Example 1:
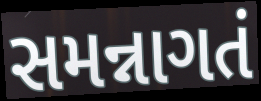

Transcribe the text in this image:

સમન્નાગતં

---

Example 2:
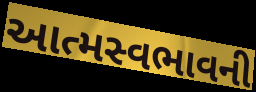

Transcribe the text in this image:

આત્મસ્વભાવની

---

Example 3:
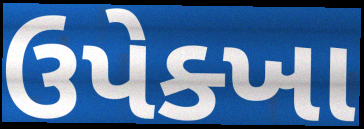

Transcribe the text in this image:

ઉપેક્ખા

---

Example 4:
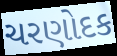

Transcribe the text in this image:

ચરણોદક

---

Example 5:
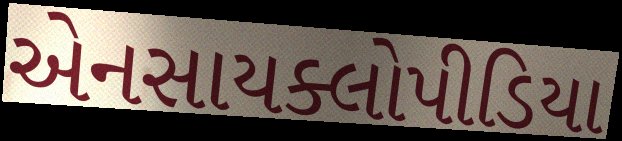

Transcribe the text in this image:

એનસાયક્લોપીડિયા